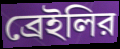
ব্রেইলির